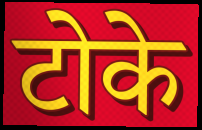
टोके